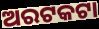
ଅରଟକଟା